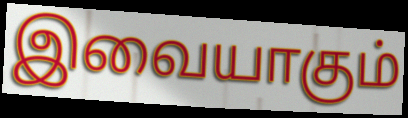
இவையாகும்